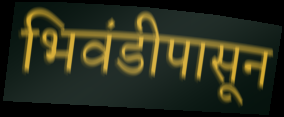
भिवंडीपासून